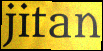
jitan